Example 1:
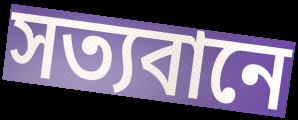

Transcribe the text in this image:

সত্যবানে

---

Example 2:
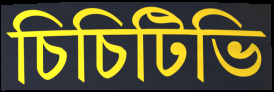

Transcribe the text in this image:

চিচিটিভি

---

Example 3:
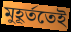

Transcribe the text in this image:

মুহূৰ্ততেই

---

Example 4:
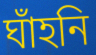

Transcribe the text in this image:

ঘাঁহনি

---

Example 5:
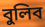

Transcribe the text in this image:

বুলিব